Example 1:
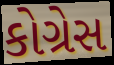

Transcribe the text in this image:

કોગ્રેસ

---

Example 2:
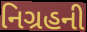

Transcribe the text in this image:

નિગ્રહની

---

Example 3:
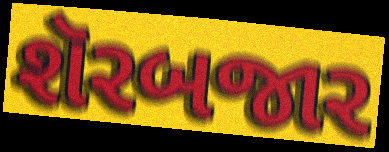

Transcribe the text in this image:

શૅરબજાર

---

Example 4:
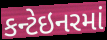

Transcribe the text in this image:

કન્ટેઇનરમાં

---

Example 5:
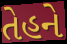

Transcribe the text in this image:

તેહને